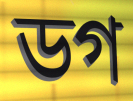
ডগ